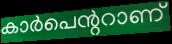
കാർപെന്ററാണ്